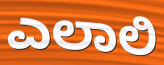
ಎಲಾಲಿ